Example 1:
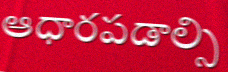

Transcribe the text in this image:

ఆధారపడాల్సి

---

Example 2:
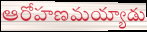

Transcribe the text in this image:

ఆరోహణమయ్యాడు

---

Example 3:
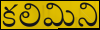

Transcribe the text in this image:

కలిమిని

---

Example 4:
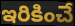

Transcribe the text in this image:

ఇరికించే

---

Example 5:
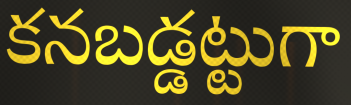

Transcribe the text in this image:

కనబడ్డట్టుగా